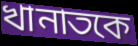
খানাতকে